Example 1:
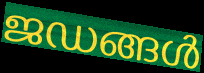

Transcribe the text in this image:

ജഡങ്ങൾ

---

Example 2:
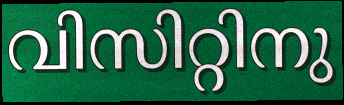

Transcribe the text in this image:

വിസിറ്റിനു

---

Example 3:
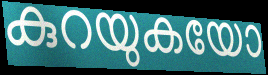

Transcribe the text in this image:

കുറയുകയോ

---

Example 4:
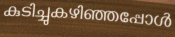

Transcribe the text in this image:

കുടിച്ചുകഴിഞ്ഞപ്പോൾ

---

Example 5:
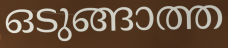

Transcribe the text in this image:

ഒടുങ്ങാത്ത